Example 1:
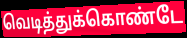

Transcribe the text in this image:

வெடித்துக்கொண்டே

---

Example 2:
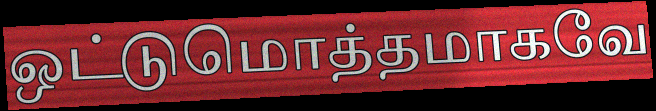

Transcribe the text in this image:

ஒட்டுமொத்தமாகவே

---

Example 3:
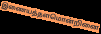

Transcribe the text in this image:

இணையத்தளமொன்றினை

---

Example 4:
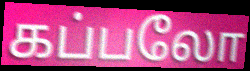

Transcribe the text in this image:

கப்பலோ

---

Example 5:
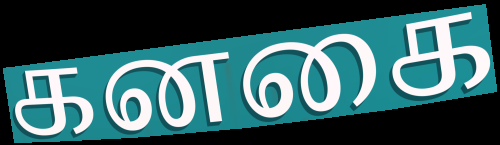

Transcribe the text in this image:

கனகை